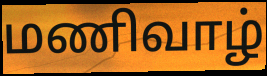
மணிவாழ்